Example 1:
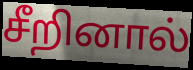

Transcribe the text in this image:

சீறினால்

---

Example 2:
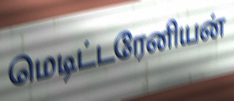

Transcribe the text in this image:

மெடிட்டரேனியன்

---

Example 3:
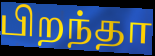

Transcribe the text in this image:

பிறந்தா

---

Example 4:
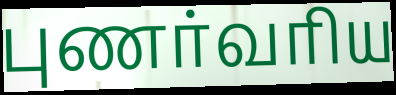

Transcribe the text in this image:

புணர்வரிய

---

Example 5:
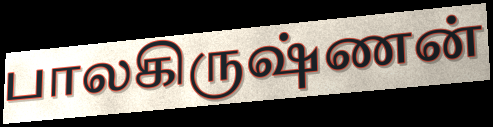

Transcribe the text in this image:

பாலகிருஷ்ணன்